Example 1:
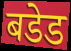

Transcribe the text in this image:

बडेड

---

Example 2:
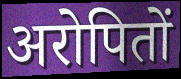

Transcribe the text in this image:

अरोपितों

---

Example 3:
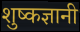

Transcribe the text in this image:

शुष्कज्ञानी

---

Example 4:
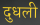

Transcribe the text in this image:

दुधली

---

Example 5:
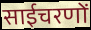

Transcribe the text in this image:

साईचरणों